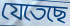
যেতেছে